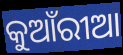
କୁଆଁରୀଆ